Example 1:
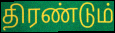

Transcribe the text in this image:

திரண்டும்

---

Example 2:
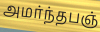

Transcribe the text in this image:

அமர்ந்தபஞ்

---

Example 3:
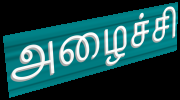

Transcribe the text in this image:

அழைச்சி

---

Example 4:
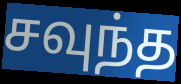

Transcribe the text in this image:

சவுந்த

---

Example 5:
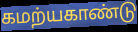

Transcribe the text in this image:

கமற்யகாண்டு